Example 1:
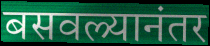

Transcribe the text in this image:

बसवल्यानंतर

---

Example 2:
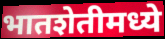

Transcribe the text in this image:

भातशेतीमध्ये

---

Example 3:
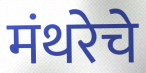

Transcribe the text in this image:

मंथरेचे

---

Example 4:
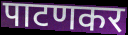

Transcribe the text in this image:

पाटणकर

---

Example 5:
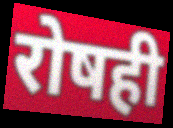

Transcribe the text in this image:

रोषही